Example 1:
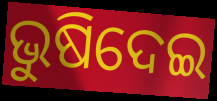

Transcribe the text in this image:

ଭୁଷିଦେଇ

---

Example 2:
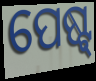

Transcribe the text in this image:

ପେଷ୍ଟ୍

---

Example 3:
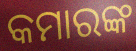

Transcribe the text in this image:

କମାରଙ୍କ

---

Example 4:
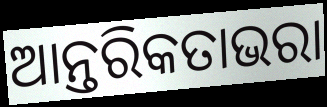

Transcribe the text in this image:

ଆନ୍ତରିକତାଭରା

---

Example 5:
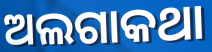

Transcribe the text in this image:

ଅଲଗାକଥା